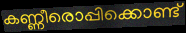
കണ്ണീരൊപ്പിക്കൊണ്ട്